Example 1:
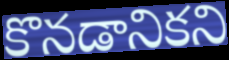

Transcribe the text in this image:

కొనడానికని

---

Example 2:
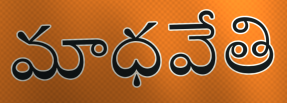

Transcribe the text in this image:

మాధవేతి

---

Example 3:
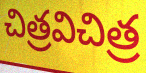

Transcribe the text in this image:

చిత్రవిచిత్ర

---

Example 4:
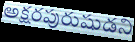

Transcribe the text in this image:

అక్షరపురుషుడని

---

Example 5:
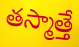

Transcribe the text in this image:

తస్మాత్తే